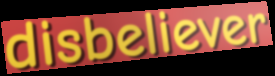
disbeliever